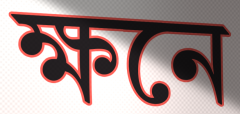
ক্ষনে